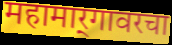
महामार्गावरचा